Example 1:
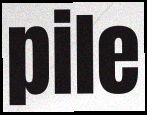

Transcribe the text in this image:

pile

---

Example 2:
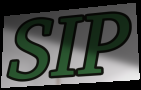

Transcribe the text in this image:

SIP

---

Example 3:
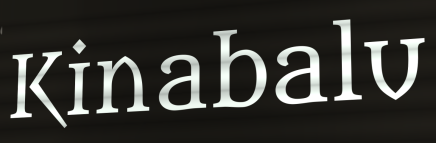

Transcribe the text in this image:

Kinabalu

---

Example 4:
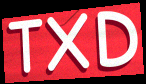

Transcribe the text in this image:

TXD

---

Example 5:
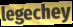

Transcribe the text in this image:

legechey